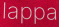
lappa